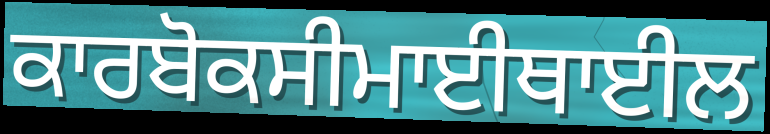
ਕਾਰਬੋਕਸੀਮਾਈਥਾਈਲ